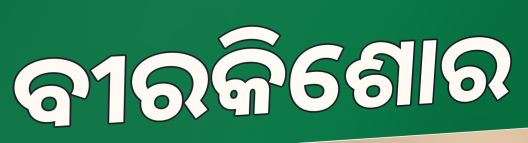
ବୀରକିଶୋର